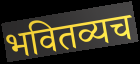
भवितव्यच